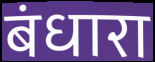
बंधारा